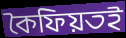
কৈফিয়তই